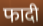
फादी